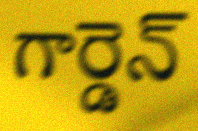
గార్డెన్